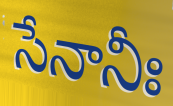
సేనానీః